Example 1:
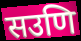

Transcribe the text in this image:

सउणि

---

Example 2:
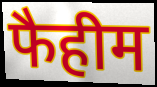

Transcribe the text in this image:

फैहीम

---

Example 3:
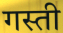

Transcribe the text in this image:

गस्ती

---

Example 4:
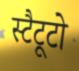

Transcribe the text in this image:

स्टैटूटो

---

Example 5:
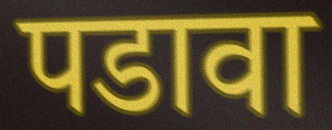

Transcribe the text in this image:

पडावा